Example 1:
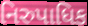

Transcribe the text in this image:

નિરુપાધિક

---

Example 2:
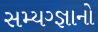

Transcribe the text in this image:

સમ્યગ્જ્ઞાનો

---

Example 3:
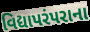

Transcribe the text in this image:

વિદ્યાપરંપરાના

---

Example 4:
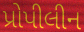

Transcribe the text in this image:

પ્રોપીલીન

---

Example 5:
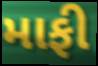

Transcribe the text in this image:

માફી